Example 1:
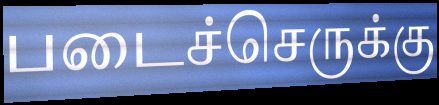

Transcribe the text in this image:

படைச்செருக்கு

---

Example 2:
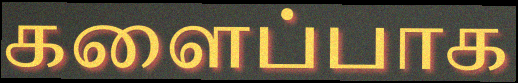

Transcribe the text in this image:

களைப்பாக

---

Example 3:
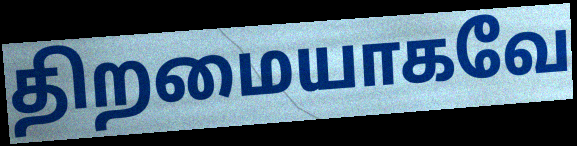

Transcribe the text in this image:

திறமையாகவே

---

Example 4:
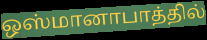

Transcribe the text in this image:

ஒஸ்மானாபாத்தில்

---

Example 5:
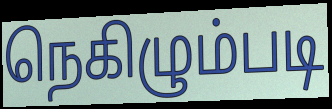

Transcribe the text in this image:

நெகிழும்படி